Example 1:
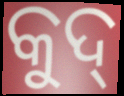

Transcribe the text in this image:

କୁଦ୍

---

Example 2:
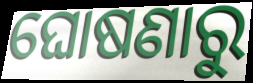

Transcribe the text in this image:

ଘୋଷଣାରୁ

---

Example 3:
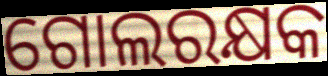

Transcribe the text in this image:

ଗୋଲରକ୍ଷକ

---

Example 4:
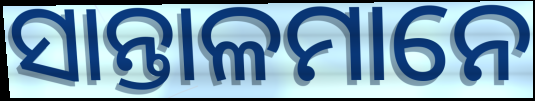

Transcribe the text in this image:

ସାନ୍ତାଳମାନେ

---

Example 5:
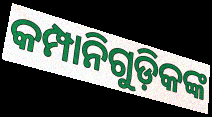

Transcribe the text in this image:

କମ୍ପାନିଗୁଡ଼ିକଙ୍କ